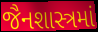
જૈનશાસ્ત્રમાં